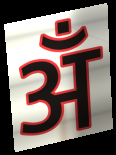
अँ